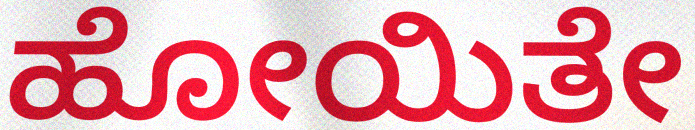
ಹೋಯಿತೇ